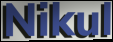
Nikul